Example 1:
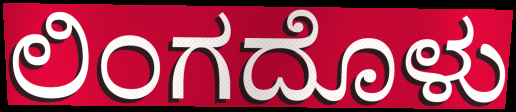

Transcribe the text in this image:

ಲಿಂಗದೊಳು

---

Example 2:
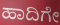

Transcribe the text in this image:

ಹಾದಿಗೇ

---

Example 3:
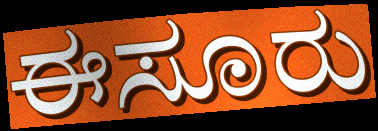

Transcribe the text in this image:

ಈಸೂರು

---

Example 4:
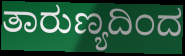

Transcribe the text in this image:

ತಾರುಣ್ಯದಿಂದ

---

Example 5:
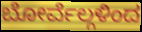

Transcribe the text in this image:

ಬೋರ್ವೆಲ್ಗಳಿಂದ